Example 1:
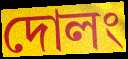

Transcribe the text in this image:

দোলং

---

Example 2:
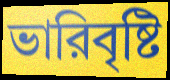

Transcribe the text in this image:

ভারিবৃষ্টি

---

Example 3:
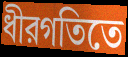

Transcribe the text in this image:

ধীরগতিতে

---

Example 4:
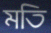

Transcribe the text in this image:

মতি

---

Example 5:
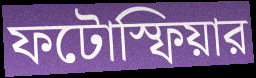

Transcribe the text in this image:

ফটোস্ফিয়ার